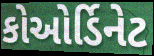
કોઓર્ડિનેટ